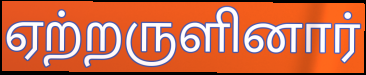
ஏற்றருளினார்